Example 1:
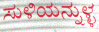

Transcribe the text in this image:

ಸುಳಿಯನ್ನುಳ್ಳ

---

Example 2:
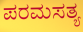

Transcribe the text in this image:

ಪರಮಸತ್ಯ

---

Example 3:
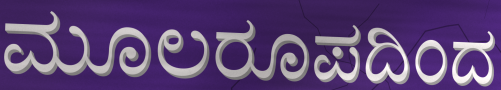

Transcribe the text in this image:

ಮೂಲರೂಪದಿಂದ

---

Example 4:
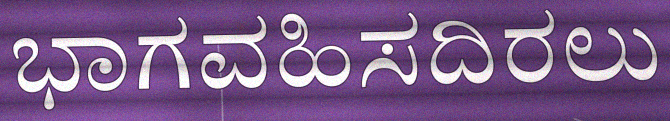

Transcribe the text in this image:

ಭಾಗವಹಿಸದಿರಲು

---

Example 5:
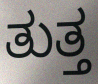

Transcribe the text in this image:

ತುತ್ತ